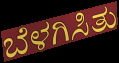
ಬೆಳಗಿಸಿತು